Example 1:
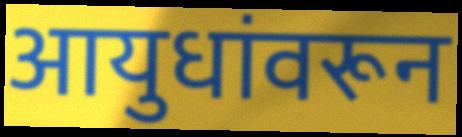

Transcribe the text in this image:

आयुधांवरून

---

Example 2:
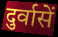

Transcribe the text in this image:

दुर्वासें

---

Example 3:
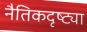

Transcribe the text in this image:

नैतिकदृष्ट्या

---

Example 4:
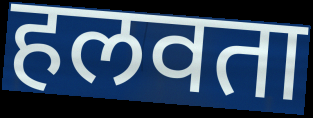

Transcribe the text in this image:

हलवता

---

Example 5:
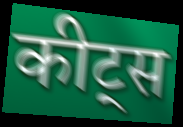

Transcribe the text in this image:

कीट्‌स